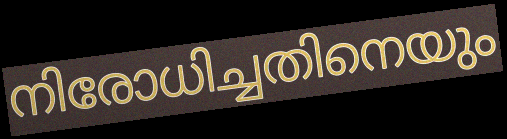
നിരോധിച്ചതിനെയും